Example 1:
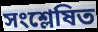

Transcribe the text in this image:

সংশ্লেষিত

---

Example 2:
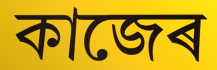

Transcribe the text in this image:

কাজেৰ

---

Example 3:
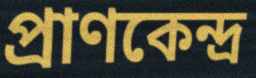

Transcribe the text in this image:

প্ৰাণকেন্দ্ৰ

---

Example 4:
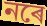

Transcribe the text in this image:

নৰে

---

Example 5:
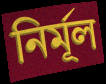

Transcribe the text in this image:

নিৰ্মূল